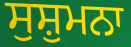
ਸੁਸ਼ੁਮਨਾ